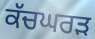
ਕੱਚਘਰੜ